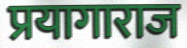
प्रयागाराज